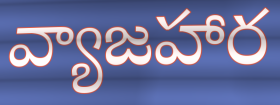
వ్యాజహార